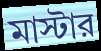
মাস্টার